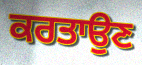
ਕਰਤਾਉਣ